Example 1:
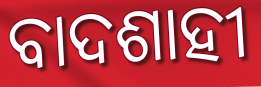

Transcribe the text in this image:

ବାଦଶାହୀ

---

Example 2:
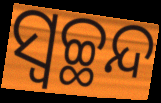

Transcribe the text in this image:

ସ୍ୱଚ୍ଛନ୍ଦ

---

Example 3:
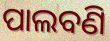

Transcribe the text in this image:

ପାଲବଣି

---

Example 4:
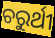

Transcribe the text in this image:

ଚରୁର୍ଥୀ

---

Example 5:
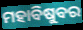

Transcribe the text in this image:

ମହାବିଷୁବର